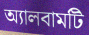
অ্যালবামটি